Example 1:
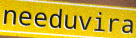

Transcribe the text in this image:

needuvira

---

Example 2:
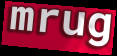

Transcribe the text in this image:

mrug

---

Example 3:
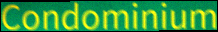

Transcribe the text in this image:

Condominium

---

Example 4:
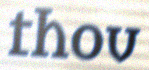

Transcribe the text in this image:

thou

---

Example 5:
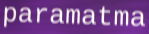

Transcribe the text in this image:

paramatma